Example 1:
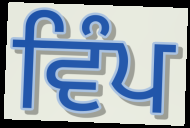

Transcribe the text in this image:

ਵਿੰਪ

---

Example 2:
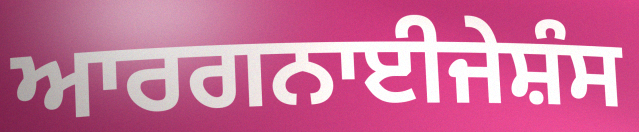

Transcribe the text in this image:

ਆਰਗਨਾਈਜੇਸ਼ੰਸ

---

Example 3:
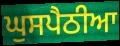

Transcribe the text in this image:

ਘੁਸਪੈਠੀਆ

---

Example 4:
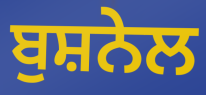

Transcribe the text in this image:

ਬੁਸ਼ਨੇਲ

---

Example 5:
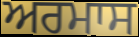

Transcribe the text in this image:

ਅਰਮਾਸ